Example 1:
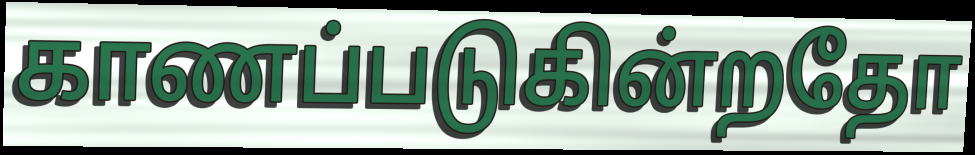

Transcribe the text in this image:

காணப்படுகின்றதோ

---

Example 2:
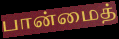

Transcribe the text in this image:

பான்மைத்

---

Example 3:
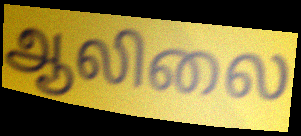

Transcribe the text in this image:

ஆலிலை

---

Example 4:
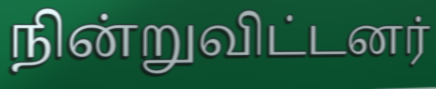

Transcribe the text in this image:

நின்றுவிட்டனர்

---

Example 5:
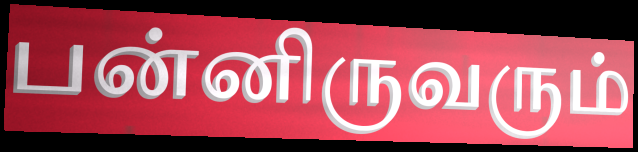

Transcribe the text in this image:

பன்னிருவரும்